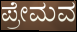
ಪ್ರೇಮವ